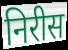
निरीस